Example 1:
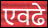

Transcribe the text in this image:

एवढे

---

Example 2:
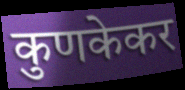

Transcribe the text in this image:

कुणकेकर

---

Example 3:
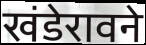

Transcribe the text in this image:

खंडेरावने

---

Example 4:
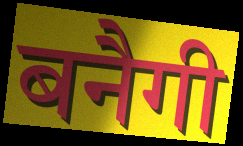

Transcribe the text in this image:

बनैगी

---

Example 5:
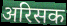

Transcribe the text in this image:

अरिसक